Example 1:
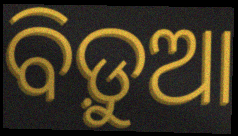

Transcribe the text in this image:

ବିଡ଼ୁଆ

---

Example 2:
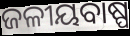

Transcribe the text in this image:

ଜଳୀୟବାଷ୍ପ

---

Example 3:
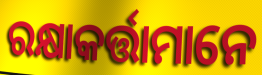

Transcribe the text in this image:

ରକ୍ଷାକର୍ତ୍ତାମାନେ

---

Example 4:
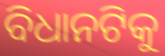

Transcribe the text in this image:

ବିଧାନଟିକୁ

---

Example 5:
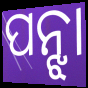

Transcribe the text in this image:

ପନ୍ଝା